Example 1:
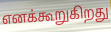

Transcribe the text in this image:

எனக்கூறுகிறது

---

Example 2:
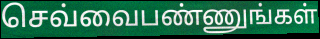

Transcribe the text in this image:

செவ்வைபண்ணுங்கள்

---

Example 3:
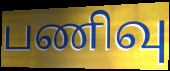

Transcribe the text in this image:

பணிவு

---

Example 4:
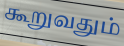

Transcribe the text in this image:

கூறுவதும்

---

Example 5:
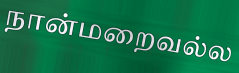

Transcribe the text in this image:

நான்மறைவல்ல